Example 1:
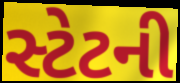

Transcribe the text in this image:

સ્ટેટની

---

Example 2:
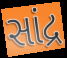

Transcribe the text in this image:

સાંદ્ર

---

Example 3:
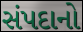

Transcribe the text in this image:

સંપદાનો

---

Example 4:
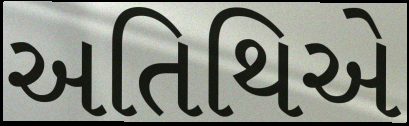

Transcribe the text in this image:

અતિથિએ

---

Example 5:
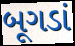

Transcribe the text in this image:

બૂગડાં